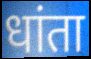
धांता